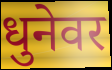
धुनेवर